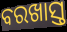
ବରଖାସ୍ତ